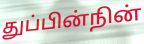
துப்பின்நின்